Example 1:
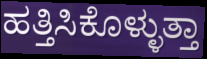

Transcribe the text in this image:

ಹತ್ತಿಸಿಕೊಳ್ಳುತ್ತಾ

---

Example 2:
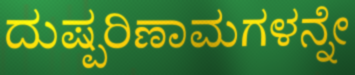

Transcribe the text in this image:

ದುಷ್ಪರಿಣಾಮಗಳನ್ನೇ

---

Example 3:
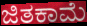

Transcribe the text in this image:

ಜಿತಕಾಮೆ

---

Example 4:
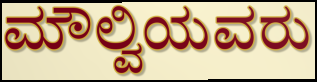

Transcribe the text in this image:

ಮೌಲ್ವಿಯವರು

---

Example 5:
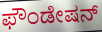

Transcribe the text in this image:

ಫೌಂಡೇಷನ್